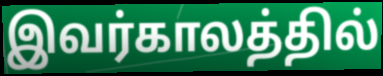
இவர்காலத்தில்